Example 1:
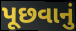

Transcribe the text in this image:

પૂછવાનું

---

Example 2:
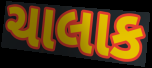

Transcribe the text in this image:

ચાલાક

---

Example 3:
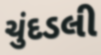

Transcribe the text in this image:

ચુંદડલી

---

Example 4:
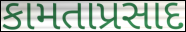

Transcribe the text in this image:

કામતાપ્રસાદ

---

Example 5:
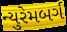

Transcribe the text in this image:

ન્યુરેમબર્ગ